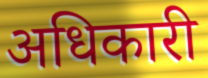
अधिकारी